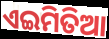
ଏଇମିତିଆ